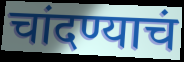
चांदण्याचं